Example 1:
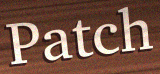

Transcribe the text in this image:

Patch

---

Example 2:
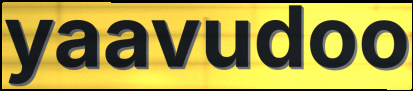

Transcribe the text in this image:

yaavudoo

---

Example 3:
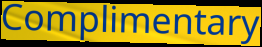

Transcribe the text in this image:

Complimentary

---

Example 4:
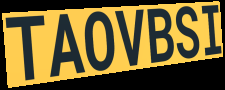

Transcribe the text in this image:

TAOVBSI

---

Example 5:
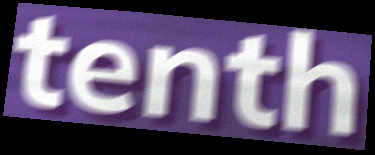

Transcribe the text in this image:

tenth